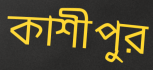
কাশীপুর